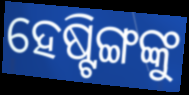
ହେଷ୍ଟିଙ୍ଗଙ୍କୁ